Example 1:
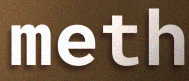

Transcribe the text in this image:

meth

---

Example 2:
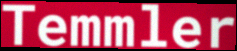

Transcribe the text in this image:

Temmler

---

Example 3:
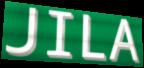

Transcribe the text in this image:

JILA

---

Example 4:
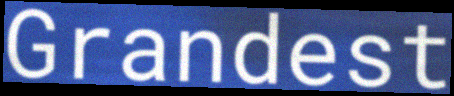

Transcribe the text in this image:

Grandest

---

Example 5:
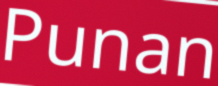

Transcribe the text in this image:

Punan